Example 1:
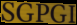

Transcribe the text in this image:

SGPGI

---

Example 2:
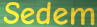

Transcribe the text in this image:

Sedem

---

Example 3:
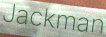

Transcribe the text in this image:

Jackman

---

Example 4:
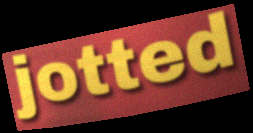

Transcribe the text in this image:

jotted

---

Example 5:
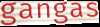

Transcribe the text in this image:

gangas